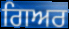
ਗਿਅਰ